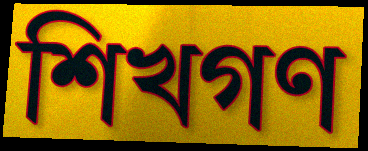
শিখগণ